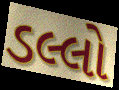
ડલ્લો